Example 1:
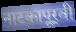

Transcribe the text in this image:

नाटकापूर्वी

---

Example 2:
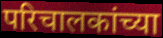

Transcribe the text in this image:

परिचालकांच्या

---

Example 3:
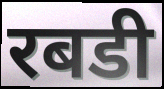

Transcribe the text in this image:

रबडी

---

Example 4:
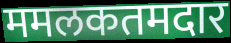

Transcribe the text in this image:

ममलकतमदार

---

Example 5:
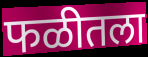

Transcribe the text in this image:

फळीतला